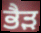
ਭੈੜ